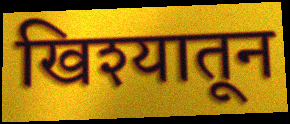
खिश्यातून